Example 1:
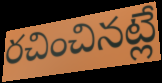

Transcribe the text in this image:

రచించినట్లే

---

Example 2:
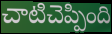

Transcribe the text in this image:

చాటిచెప్పింది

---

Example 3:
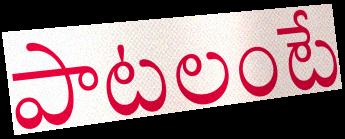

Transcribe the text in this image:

పాటలంటే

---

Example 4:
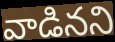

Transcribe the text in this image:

వాడినని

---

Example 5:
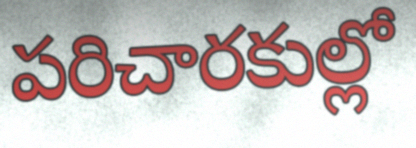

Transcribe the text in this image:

పరిచారకుల్లో